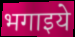
भगाइये